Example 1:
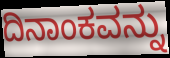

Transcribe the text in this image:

ದಿನಾಂಕವನ್ನು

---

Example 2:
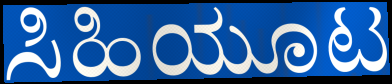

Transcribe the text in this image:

ಸಿಹಿಯೂಟ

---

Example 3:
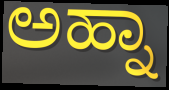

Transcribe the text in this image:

ಅಹ್ನಾ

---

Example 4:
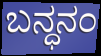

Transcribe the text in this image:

ಬನ್ಧನಂ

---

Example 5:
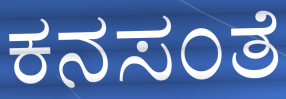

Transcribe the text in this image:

ಕನಸಂತೆ